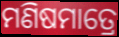
ମଣିଷମାତ୍ରେ